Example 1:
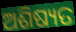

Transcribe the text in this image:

ଅଶିଷ୍ଯତ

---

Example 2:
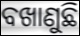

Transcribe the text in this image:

ବଖାଣୁଛି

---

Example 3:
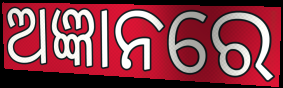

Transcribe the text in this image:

ଅଜ୍ଞାନରେ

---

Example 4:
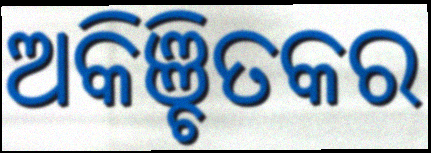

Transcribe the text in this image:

ଅକିଞ୍ଚିତକର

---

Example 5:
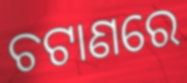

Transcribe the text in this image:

ଚଟାଣରେ